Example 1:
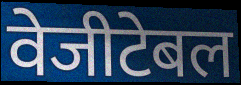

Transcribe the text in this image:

वेजीटेबल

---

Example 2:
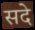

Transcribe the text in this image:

सदे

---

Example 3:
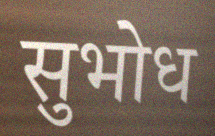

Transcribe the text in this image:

सुभोध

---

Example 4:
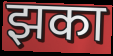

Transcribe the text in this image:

झका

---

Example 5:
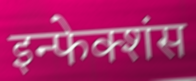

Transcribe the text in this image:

इन्फेक्शंस